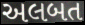
અલબત